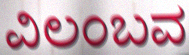
ವಿಲಂಬವ